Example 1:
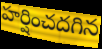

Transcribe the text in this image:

హర్షించదగిన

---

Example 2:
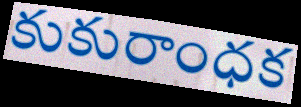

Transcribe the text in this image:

కుకురాంధక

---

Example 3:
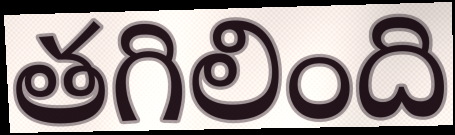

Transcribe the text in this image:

తగిలింది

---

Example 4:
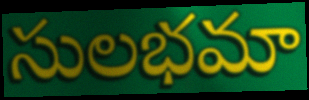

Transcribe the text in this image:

సులభమా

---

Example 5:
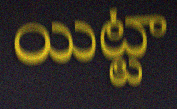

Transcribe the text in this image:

యిట్టా